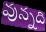
వున్నది